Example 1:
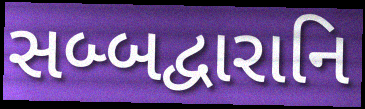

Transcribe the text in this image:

સબ્બદ્વારાનિ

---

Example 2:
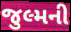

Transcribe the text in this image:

જુલ્મની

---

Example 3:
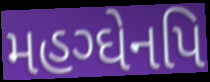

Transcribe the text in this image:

મહગ્ઘેનપિ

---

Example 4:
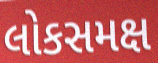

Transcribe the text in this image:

લોકસમક્ષ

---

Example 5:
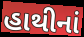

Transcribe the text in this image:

હાથીનાં